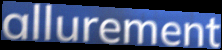
allurement